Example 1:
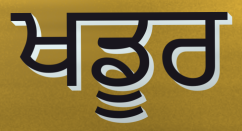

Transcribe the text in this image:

ਖਡੂਰ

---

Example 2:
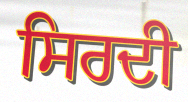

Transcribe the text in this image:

ਸਿਰਦੀ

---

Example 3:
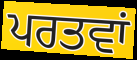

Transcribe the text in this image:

ਪਰਤਵਾਂ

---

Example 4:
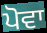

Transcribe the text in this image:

ਪੋਵਾ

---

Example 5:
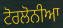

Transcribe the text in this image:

ਟੋਰਲੋਨੀਆ